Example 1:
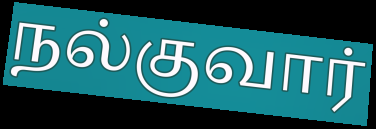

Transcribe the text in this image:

நல்குவார்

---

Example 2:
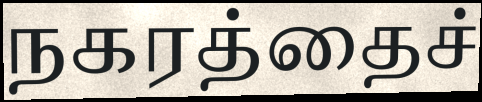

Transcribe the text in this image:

நகரத்தைச்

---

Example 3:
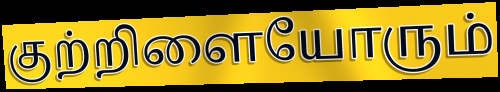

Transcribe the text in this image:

குற்றிளையோரும்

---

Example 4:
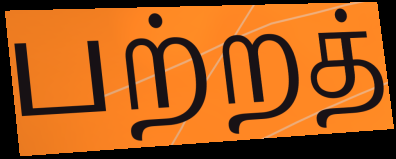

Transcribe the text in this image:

பற்றத்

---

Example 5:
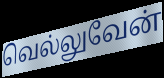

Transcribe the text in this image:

வெல்லுவேன்